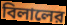
বিলালের